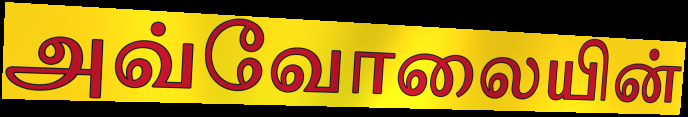
அவ்வோலையின்